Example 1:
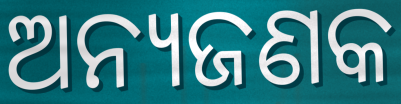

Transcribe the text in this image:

ଅନ୍ୟଜଣକ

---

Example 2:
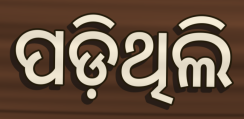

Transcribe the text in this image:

ପଡ଼ିଥିଲି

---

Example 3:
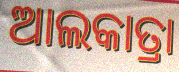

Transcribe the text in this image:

ଆଲକାତ୍ରା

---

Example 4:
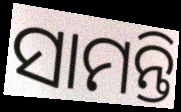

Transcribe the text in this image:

ସାମନ୍ତି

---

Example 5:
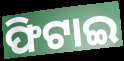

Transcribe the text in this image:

ଫିଟାଇ